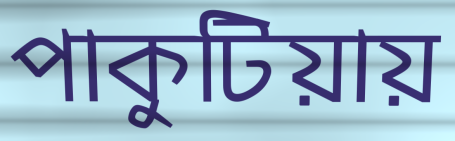
পাকুটিয়ায়